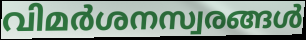
വിമർശനസ്വരങ്ങൾ